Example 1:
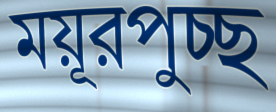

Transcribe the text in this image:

ময়ূরপুচ্ছ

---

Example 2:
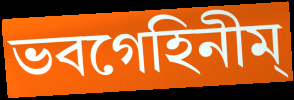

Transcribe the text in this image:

ভবগেহিনীম্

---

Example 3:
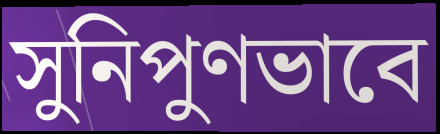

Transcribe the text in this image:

সুনিপুণভাবে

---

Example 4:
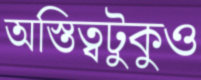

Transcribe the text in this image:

অস্তিত্বটুকুও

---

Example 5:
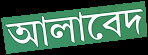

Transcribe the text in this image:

আলাবেদ